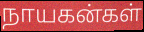
நாயகன்கள்